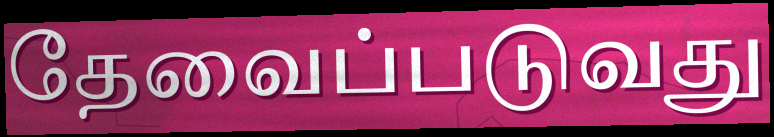
தேவைப்படுவது